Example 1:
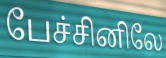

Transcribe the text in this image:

பேச்சினிலே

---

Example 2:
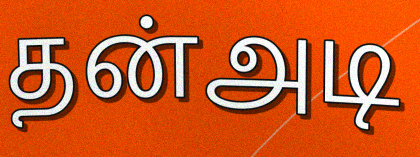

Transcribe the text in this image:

தன்அடி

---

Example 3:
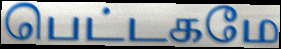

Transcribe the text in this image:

பெட்டகமே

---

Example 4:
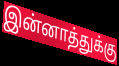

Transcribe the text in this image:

இன்னாத்துக்கு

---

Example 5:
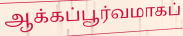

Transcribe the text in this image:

ஆக்கப்பூர்வமாகப்